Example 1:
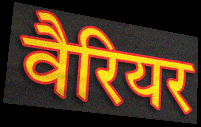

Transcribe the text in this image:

वैरियर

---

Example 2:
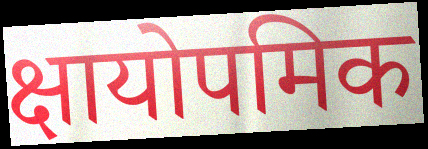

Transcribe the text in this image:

क्षायोपमिक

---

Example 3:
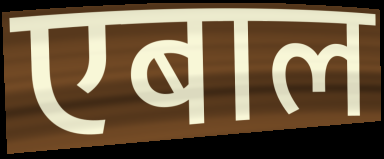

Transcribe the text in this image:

एबाल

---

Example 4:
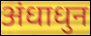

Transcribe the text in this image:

अंधाधुन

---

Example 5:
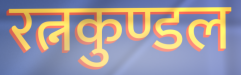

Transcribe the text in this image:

रत्नकुण्डल